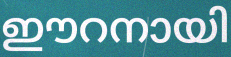
ഈറനായി